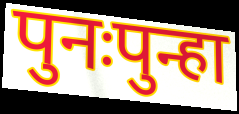
पुनःपुन्हा